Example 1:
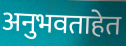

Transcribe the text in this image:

अनुभवताहेत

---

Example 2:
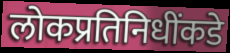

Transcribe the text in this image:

लोकप्रतिनिधींकडे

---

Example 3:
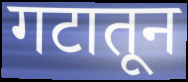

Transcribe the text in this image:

गटातून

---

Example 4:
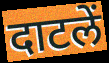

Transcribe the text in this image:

दाटलें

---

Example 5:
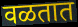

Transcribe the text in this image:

वळतात